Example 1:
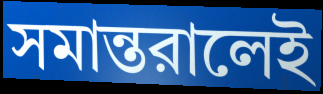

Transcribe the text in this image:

সমান্তরালেই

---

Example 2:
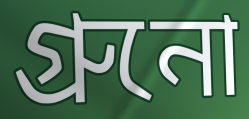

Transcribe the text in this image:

গ্রুনো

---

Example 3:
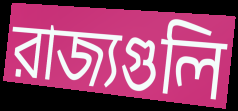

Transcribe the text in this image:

রাজ্যগুলি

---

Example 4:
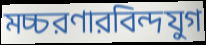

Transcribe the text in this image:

মচ্চরণারবিন্দযুগ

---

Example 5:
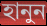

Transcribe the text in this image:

হানুন